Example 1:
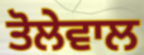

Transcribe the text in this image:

ਤੋਲੇਵਾਲ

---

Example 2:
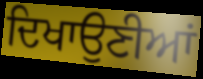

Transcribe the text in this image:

ਦਿਖਾਉਣੀਆਂ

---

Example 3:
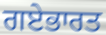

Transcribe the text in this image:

ਗਏਭਾਰਤ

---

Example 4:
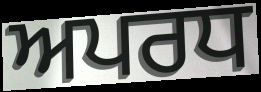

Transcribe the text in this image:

ਅਪਰਧ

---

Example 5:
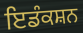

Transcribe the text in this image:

ਇਡੰਕਸ਼ਨ